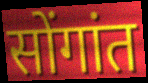
सोंगांत